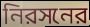
নিরসনের